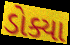
ડોક્યા